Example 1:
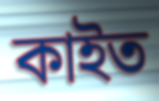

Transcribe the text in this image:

কাইত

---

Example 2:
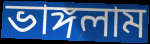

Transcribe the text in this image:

ভাঙ্গলাম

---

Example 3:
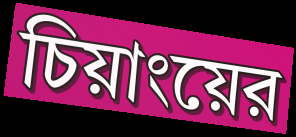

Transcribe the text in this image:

চিয়াংয়ের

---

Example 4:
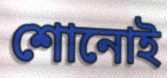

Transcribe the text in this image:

শোনোই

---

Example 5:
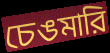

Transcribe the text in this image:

চেঙমারি